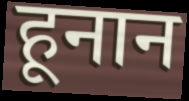
हूनान